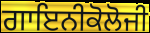
ਗਾਇਨੀਕੋਲੋਜੀ